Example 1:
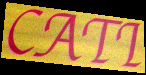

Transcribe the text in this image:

CATI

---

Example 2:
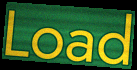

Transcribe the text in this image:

Load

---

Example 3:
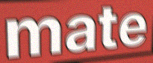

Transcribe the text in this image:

mate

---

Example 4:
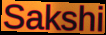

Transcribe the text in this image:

Sakshi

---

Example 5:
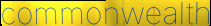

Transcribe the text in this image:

commonwealth